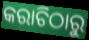
କରାଚିଠାରୁ